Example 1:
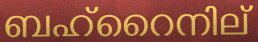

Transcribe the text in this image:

ബഹ്റൈനില്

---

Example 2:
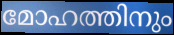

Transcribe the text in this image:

മോഹത്തിനും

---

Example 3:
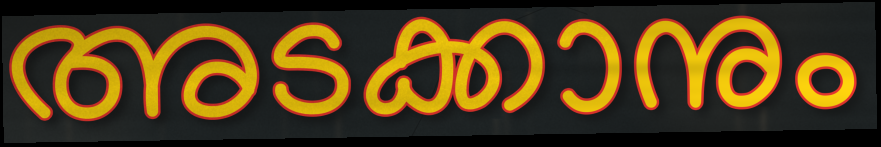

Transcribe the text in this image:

അടക്കാനും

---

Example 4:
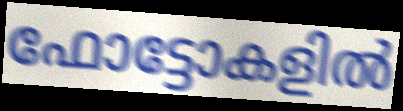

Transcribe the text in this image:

ഫോട്ടോകളിൽ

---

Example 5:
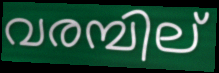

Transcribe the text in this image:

വരമ്പില്